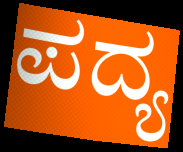
ಪದ್ಯ